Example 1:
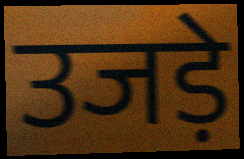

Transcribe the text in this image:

उजड़े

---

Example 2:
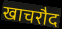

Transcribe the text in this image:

खाचरौद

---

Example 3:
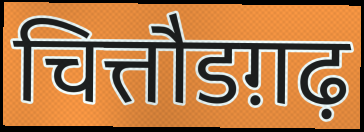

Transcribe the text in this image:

चित्तौडग़ढ़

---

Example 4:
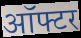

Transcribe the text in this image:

ऑफ्टर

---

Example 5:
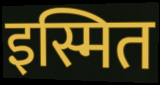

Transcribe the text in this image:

इस्मित